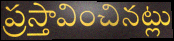
ప్రస్తావించినట్లు